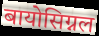
बायोसिग्नल